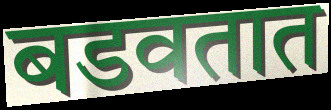
बडवतात